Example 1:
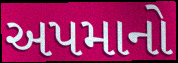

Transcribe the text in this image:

અપમાનો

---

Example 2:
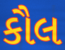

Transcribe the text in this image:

કૌલ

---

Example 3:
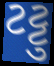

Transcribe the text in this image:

ટટ્ટુ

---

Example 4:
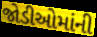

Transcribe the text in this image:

જોડીઓમાંની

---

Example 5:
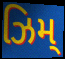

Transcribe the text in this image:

ઝિમ્